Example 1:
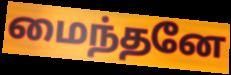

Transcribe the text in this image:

மைந்தனே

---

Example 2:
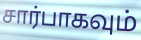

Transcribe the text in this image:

சார்பாகவும்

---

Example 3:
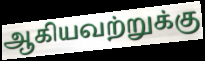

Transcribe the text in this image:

ஆகியவற்றுக்கு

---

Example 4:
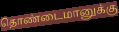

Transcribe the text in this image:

தொண்டைமானுக்கு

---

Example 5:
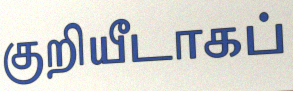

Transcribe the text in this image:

குறியீடாகப்